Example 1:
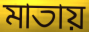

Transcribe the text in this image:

মাতায়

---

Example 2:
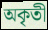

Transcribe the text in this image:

অকৃতী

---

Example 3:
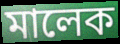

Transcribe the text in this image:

মালেক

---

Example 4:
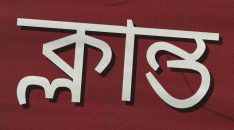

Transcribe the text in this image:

ক্লান্ত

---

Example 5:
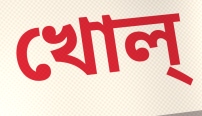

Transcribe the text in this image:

খোল্